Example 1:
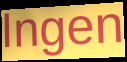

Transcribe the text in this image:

Ingen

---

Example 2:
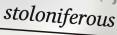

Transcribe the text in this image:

stoloniferous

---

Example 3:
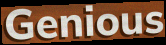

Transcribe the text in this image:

Genious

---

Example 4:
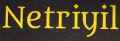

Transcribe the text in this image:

Netriyil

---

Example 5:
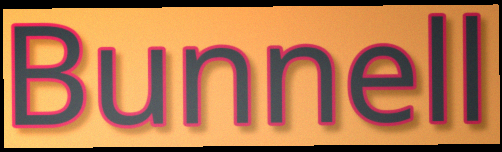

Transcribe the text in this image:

Bunnell